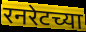
रनरेटच्या